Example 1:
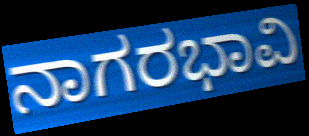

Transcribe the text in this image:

ನಾಗರಭಾವಿ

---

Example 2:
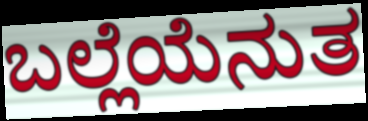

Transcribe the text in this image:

ಬಲ್ಲೆಯೆನುತ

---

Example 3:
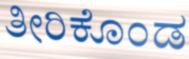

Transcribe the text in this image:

ತೀರಿಕೊಂಡ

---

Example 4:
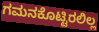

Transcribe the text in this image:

ಗಮನಕೊಟ್ಟಿರಲಿಲ್ಲ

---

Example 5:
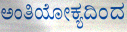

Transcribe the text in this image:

ಅಂತಿಯೋಕ್ಯದಿಂದ